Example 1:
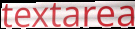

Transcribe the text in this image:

textarea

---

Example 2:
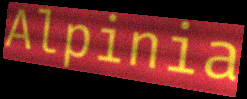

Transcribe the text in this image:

Alpinia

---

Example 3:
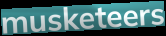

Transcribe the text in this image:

musketeers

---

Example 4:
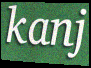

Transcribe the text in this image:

kanj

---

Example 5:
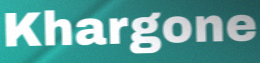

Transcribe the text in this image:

Khargone